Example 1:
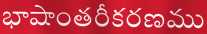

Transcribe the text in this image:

భాషాంతరీకరణము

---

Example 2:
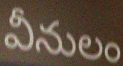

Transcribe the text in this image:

వీనులం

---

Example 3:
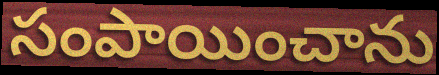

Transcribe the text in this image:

సంపాయించాను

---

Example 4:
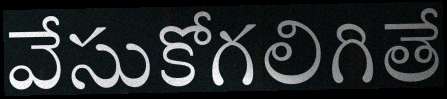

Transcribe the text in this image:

వేసుకోగలిగితే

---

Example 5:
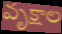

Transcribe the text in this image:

వృక్షాల